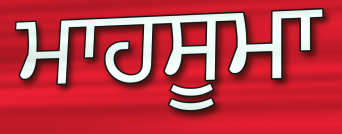
ਮਾਹਸੂਮਾ